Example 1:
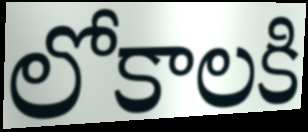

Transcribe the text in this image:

లోకాలకి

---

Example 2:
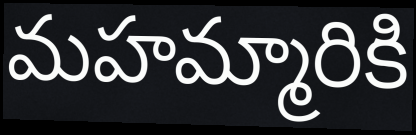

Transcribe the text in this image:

మహమ్మారికి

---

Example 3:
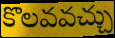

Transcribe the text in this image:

కొలవవచ్చు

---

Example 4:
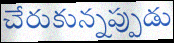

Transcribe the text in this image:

చేరుకున్నప్పుడు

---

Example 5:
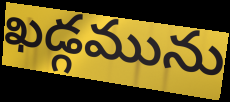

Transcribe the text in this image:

ఖడ్గమును